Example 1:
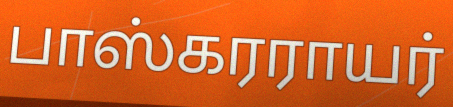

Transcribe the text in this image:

பாஸ்கரராயர்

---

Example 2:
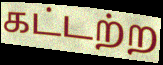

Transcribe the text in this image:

கட்டற்ற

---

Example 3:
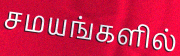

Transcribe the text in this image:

சமயங்களில்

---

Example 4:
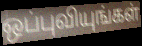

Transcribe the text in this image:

ஒப்புவியுங்கள்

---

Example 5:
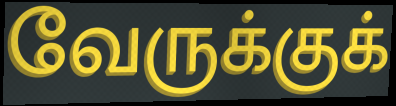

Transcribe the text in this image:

வேருக்குக்